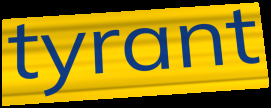
tyrant